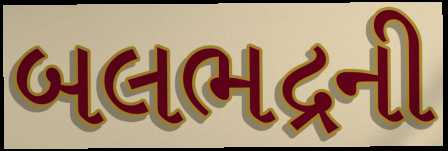
બલભદ્રની